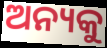
ଅନ୍ୟକୁ